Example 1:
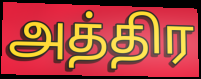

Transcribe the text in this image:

அத்திர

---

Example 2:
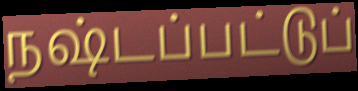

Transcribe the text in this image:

நஷ்டப்பட்டுப்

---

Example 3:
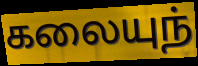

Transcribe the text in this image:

கலையுந்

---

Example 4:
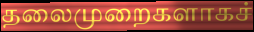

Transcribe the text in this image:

தலைமுறைகளாகச்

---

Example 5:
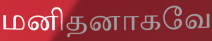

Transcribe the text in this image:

மனிதனாகவே